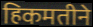
हिकमतीने